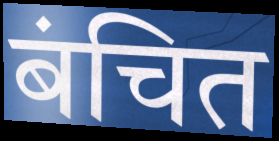
बंचित